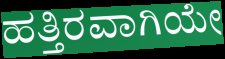
ಹತ್ತಿರವಾಗಿಯೇ